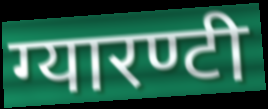
ग्यारण्टी